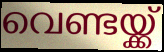
വെണ്ടയ്ക്ക്